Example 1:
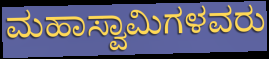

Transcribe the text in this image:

ಮಹಾಸ್ವಾಮಿಗಳವರು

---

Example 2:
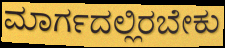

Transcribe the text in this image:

ಮಾರ್ಗದಲ್ಲಿರಬೇಕು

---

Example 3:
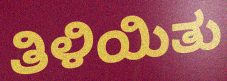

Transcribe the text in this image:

ತಿಳಿಯಿತು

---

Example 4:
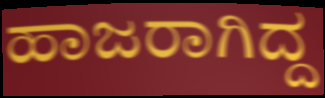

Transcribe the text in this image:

ಹಾಜರಾಗಿದ್ದ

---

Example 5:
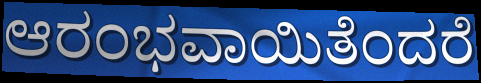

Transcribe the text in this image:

ಆರಂಭವಾಯಿತೆಂದರೆ